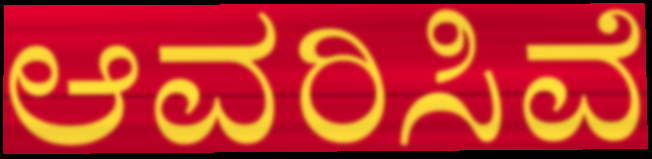
ಆವರಿಸಿವೆ